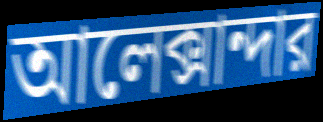
আলেক্সান্দার